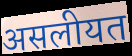
असलीयत